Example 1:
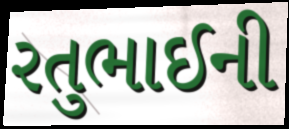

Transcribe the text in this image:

રતુભાઈની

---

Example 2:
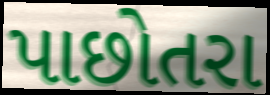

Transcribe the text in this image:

પાછોતરા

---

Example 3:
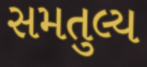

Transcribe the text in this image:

સમતુલ્ય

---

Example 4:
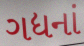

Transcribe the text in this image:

ગદ્યનાં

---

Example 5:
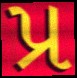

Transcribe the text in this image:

પ્ર